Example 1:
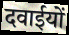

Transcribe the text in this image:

दवाईयों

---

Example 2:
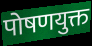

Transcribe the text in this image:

पोषणयुक्त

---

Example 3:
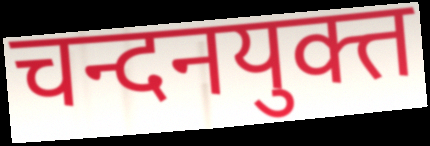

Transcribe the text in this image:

चन्दनयुक्त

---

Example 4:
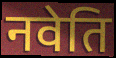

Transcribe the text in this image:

नवेति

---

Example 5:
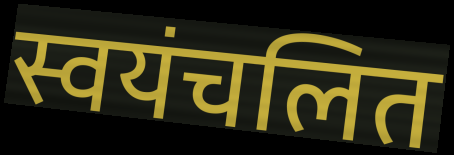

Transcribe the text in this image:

स्वयंचलित